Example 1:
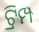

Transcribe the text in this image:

ଟ୍ରିମ୍ପ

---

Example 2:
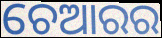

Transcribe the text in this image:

ଚେଆରର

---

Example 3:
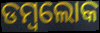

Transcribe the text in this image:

ଡମ୍ବଲୋକ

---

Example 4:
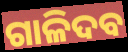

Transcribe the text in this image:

ଗାଳିଦବ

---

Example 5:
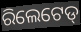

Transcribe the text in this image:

ରିଲେଟେଡ୍